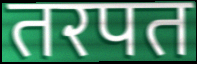
तरपत